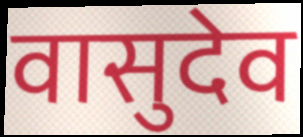
वासुदेव